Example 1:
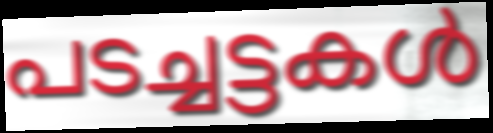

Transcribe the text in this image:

പടച്ചട്ടകൾ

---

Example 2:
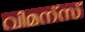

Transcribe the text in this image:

വിമന്സ്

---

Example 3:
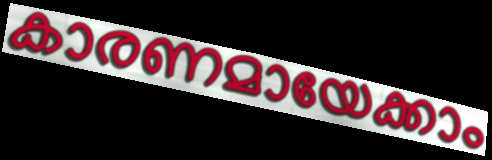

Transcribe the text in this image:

കാരണമായേക്കാം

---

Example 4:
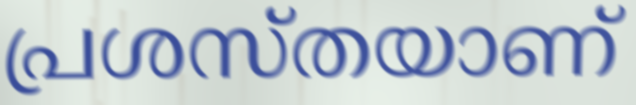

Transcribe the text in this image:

പ്രശസ്തയാണ്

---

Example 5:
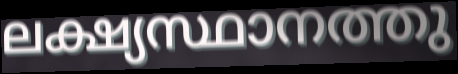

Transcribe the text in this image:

ലക്ഷ്യസ്ഥാനത്തു